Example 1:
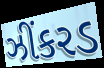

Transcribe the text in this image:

ઝીંકરડ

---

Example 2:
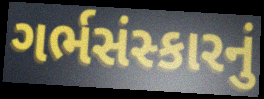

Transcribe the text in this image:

ગર્ભસંસ્કારનું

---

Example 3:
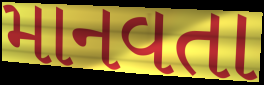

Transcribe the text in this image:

માનવતા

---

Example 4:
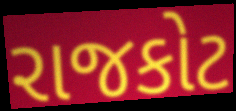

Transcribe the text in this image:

રાજકોટ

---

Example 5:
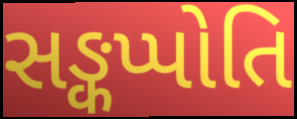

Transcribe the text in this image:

સઙ્કપ્પોતિ